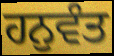
ਹਨੁਵੰਤ